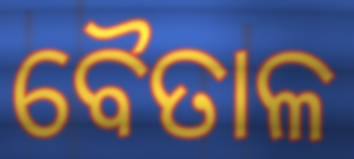
ବୈତାଳ